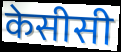
केसीसी